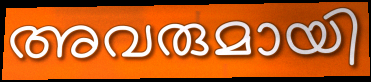
അവരുമായി